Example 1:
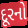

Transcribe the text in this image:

દૂરનો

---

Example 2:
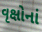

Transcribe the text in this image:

વૃક્ષોનાં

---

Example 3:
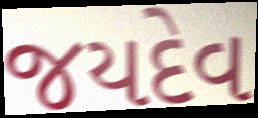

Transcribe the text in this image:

જયદેવ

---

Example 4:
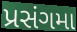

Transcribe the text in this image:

પ્રસંગમા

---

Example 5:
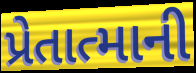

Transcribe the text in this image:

પ્રેતાત્માની